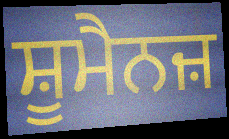
ਸ਼ੂਮੈਨਜ਼